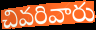
చివరివారు